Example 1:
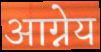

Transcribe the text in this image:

आग्नेय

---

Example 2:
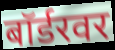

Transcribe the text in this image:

बॉर्डरवर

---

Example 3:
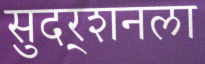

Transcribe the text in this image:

सुदर्शनला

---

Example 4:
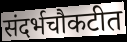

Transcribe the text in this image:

संदर्भचौकटीत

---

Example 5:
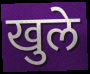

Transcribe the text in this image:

खुले